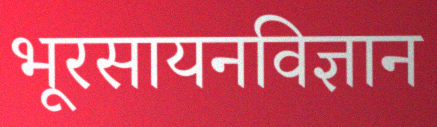
भूरसायनविज्ञान